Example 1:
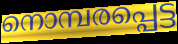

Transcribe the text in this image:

നൊമ്പരപ്പെട്ട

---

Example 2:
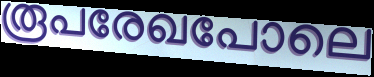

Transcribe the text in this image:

രൂപരേഖപോലെ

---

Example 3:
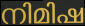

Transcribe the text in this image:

നിമിഷ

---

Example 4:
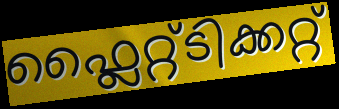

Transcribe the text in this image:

ഫ്ലൈറ്റ്ടിക്കറ്റ്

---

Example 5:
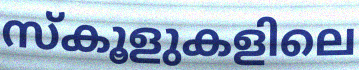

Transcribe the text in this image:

സ്കൂളുകളിലെ